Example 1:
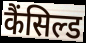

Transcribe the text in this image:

कैंसिल्ड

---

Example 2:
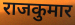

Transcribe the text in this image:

राजकुमार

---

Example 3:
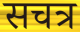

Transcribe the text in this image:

सचत्र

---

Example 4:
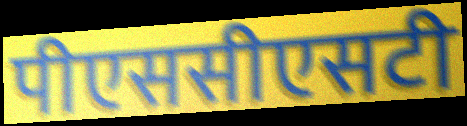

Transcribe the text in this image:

पीएससीएसटी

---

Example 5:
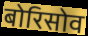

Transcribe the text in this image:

बोरिसोव